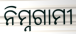
ନିମ୍ନଗାମୀ